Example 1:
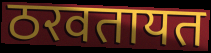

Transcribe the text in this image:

ठरवतायत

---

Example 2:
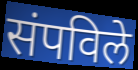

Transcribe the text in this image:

संपविले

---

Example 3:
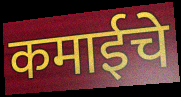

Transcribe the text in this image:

कमाईचे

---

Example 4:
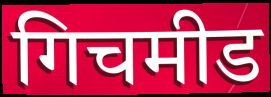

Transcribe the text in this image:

गिचमीड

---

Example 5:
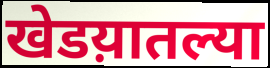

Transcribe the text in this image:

खेडय़ातल्या